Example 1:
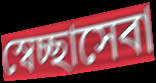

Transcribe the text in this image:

স্বেচ্ছাসেবা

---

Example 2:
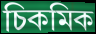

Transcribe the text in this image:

চিকমিক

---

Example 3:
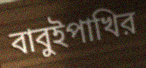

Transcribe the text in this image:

বাবুইপাখির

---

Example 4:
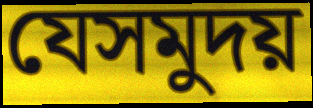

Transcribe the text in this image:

যেসমুদয়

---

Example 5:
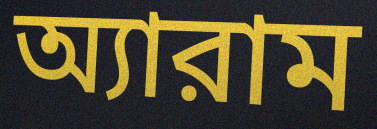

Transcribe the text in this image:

অ্যারাম